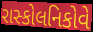
રાસ્કોલનિકોવે